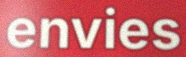
envies